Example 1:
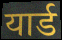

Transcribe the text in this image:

यार्ड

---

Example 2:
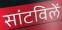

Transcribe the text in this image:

सांटविलें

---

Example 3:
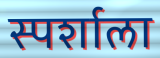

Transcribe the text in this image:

स्पर्शाला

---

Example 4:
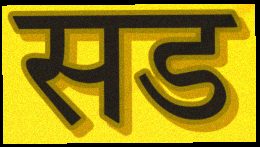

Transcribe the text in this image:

सड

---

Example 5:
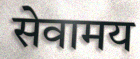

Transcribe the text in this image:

सेवामय